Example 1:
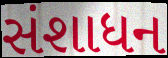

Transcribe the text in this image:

સંશાધન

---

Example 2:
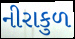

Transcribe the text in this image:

નીરાકુળ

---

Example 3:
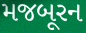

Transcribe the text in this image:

મજબૂરન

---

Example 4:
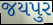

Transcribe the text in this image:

જયપુર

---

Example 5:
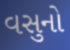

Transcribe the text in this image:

વસુનો